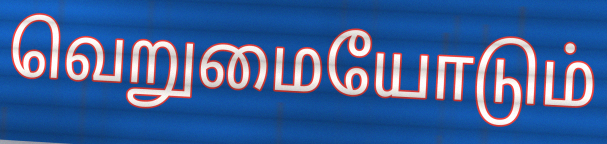
வெறுமையோடும்